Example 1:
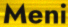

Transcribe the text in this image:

Meni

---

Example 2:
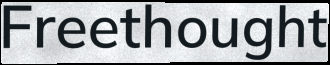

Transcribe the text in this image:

Freethought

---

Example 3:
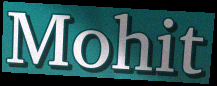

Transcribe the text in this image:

Mohit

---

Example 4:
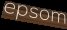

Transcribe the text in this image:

epsom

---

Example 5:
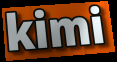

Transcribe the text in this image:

kimi